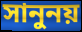
সানুনয়